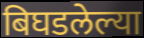
बिघडलेल्या